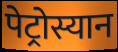
पेट्रोस्यान